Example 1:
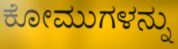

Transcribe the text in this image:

ಕೋಮುಗಳನ್ನು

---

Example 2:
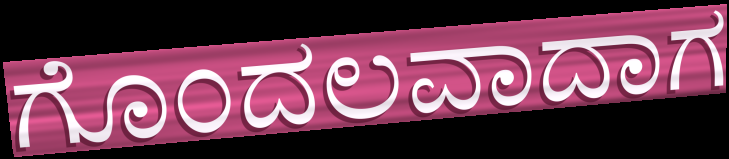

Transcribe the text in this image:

ಗೊಂದಲವಾದಾಗ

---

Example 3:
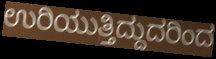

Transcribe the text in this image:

ಉರಿಯುತ್ತಿದ್ದುದರಿಂದ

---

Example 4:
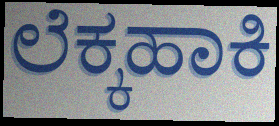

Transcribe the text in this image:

ಲೆಕ್ಕಹಾಕಿ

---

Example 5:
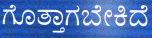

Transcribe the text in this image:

ಗೊತ್ತಾಗಬೇಕಿದೆ